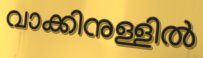
വാക്കിനുള്ളിൽ